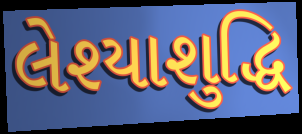
લેશ્યાશુદ્ધિ